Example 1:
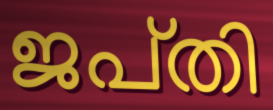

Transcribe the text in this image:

ജപ്‌തി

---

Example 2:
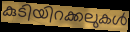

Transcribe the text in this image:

കുടിയിറക്കലുകൾ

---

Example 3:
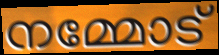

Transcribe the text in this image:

നമ്മോട്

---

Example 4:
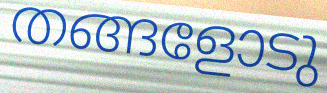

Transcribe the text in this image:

തങ്ങളോടു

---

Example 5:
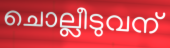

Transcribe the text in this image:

ചൊല്ലീടുവന്